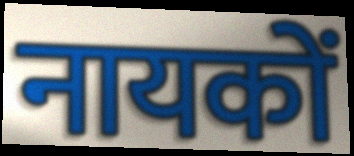
नायकों